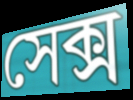
সেক্স